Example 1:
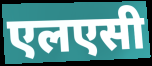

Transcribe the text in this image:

एलएसी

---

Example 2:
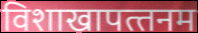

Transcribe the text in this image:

विशाखापत्‍तनम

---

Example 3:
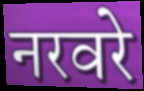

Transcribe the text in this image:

नरवरे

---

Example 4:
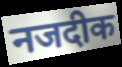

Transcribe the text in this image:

नजदीक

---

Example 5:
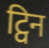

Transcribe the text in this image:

ट्विन